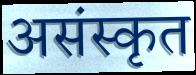
असंस्कृत